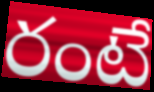
రంటే